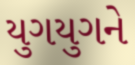
યુગયુગને